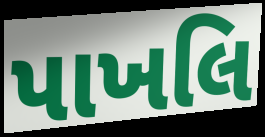
પાખલિ